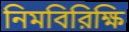
নিমবিরিক্ষি